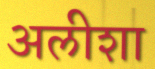
अलीशा